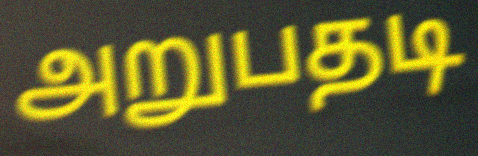
அறுபதடி